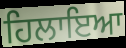
ਹਿਲਾਇਆ